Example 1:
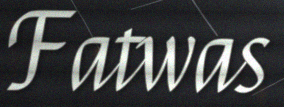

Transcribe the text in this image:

Fatwas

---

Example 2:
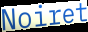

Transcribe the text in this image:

Noiret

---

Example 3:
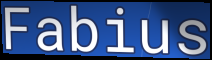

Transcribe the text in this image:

Fabius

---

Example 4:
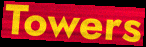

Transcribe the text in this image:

Towers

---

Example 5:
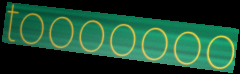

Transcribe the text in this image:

tooooooo